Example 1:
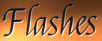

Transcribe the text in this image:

Flashes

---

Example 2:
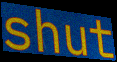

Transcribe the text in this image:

shut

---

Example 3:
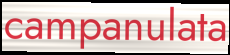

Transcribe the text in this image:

campanulata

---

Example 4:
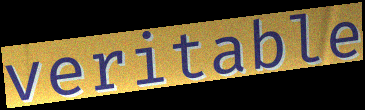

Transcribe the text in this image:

veritable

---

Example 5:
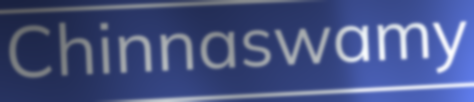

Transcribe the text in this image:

Chinnaswamy